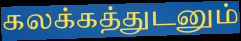
கலக்கத்துடனும்